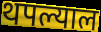
थपल्याल